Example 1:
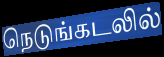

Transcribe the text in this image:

நெடுங்கடலில்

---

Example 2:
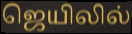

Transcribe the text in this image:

ஜெயிலில்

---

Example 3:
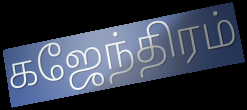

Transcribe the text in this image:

கஜேந்திரம்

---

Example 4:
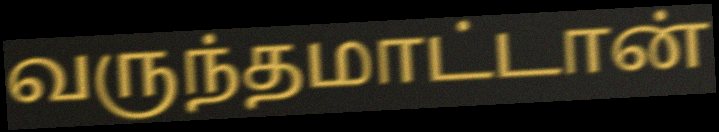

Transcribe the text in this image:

வருந்தமாட்டான்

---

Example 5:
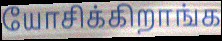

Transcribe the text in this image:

யோசிக்கிறாங்க